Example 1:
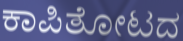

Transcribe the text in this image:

ಕಾಪಿತೋಟದ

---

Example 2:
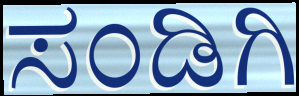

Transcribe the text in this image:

ಸಂಡಿಗಿ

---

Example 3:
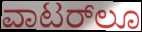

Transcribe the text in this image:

ವಾಟರ್‌ಲೂ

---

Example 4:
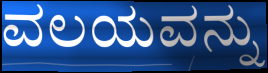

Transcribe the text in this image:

ವಲಯವನ್ನು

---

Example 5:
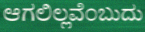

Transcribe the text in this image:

ಆಗಲಿಲ್ಲವೆಂಬುದು